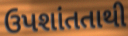
ઉપશાંતતાથી